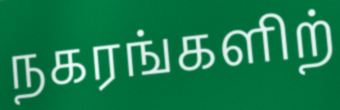
நகரங்களிற்